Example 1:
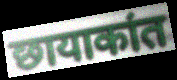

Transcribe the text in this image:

छायाकांत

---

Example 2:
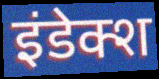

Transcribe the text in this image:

इंडेक्श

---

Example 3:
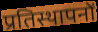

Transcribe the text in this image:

प्रतिस्थापनों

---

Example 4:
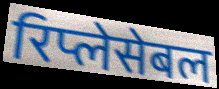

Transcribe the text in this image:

रिप्लेसेबल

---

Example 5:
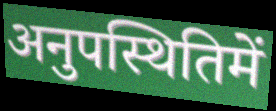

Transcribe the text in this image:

अनुपस्थितिमें